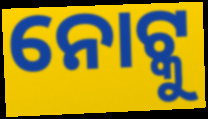
ନୋଟ୍କୁ